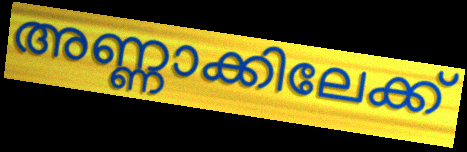
അണ്ണാക്കിലേക്ക്